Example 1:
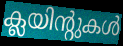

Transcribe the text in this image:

ക്ലയിന്റുകൾ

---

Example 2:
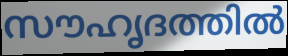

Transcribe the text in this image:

സൗഹൃദത്തിൽ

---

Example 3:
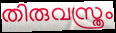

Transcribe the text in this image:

തിരുവസ്ത്രം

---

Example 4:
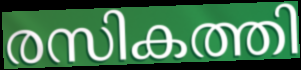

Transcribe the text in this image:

രസികത്തി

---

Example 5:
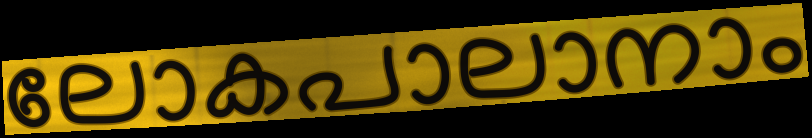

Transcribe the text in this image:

ലോകപാലാനാം